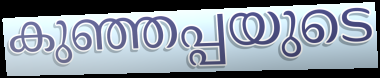
കുഞ്ഞപ്പയുടെ